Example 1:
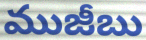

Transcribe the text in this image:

ముజీబు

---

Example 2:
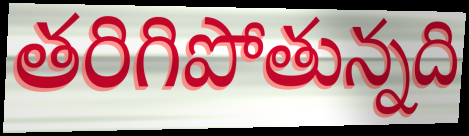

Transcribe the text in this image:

తరిగిపోతున్నది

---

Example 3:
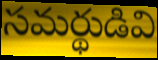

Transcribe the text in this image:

సమర్థుడివి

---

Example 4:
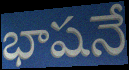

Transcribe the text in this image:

భాషనే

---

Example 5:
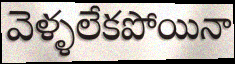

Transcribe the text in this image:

వెళ్ళలేకపోయినా